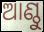
ଆଣ୍ଠୁ